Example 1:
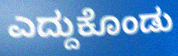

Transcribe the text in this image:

ಎದ್ದುಕೊಂಡು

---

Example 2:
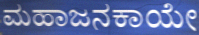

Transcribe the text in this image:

ಮಹಾಜನಕಾಯೇ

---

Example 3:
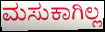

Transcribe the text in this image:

ಮಸುಕಾಗಿಲ್ಲ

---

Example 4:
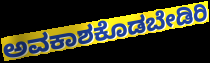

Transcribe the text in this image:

ಅವಕಾಶಕೊಡಬೇಡಿರಿ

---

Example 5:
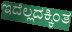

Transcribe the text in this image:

ಇದೆಲ್ಲದಕ್ಕಿಂತ